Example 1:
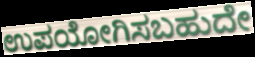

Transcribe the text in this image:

ಉಪಯೋಗಿಸಬಹುದೇ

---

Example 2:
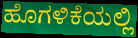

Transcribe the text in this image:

ಹೊಗಳಿಕೆಯಲ್ಲಿ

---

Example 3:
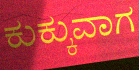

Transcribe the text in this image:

ಕುಕ್ಕುವಾಗ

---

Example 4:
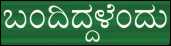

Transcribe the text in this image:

ಬಂದಿದ್ದಳೆಂದು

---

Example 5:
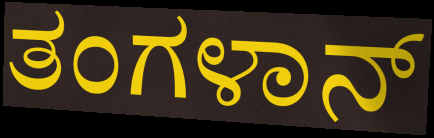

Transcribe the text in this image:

ತಂಗಳಾನ್